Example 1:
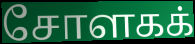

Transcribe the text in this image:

சோளகக்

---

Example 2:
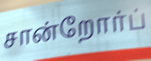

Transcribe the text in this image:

சான்றோர்ப்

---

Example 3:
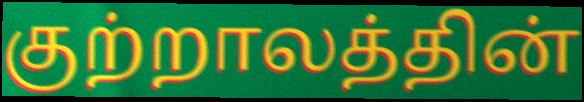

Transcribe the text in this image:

குற்றாலத்தின்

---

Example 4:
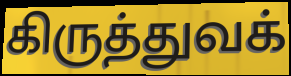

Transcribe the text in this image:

கிருத்துவக்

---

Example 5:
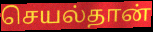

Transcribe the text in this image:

செயல்தான்